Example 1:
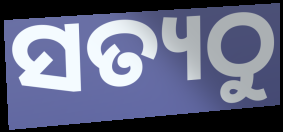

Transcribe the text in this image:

ସତ୍ୟଠୁ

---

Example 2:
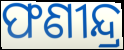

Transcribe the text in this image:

ଫଣୀନ୍ଦ୍ର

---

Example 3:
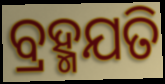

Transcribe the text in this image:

ବ୍ରହ୍ମଯତି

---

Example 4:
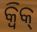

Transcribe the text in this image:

କ୍ୱିକ୍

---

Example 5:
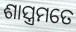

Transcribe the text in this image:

ଶାସ୍ତ୍ରମତେ